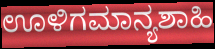
ಊಳಿಗಮಾನ್ಯಶಾಹಿ